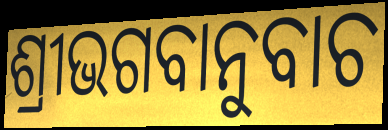
ଶ୍ରୀଭଗବାନୁବାଚ